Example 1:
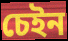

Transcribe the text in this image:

চেইন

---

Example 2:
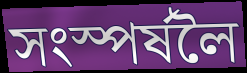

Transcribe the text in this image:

সংস্পৰ্ষলৈ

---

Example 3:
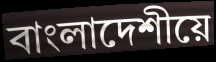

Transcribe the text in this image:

বাংলাদেশীয়ে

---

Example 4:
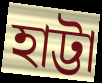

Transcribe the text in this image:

হাট্টা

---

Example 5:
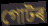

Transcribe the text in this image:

গোটৰ